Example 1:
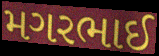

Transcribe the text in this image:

મગરભાઈ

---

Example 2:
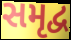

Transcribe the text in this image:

સમૃદ્વ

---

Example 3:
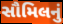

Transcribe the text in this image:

સૌમિલનું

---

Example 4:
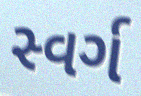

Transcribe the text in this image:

સ્વર્ગ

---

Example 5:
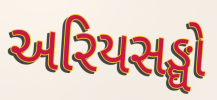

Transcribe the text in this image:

અરિયસઙ્ઘો